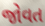
જોવત